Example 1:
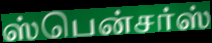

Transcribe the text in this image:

ஸ்பென்சர்ஸ்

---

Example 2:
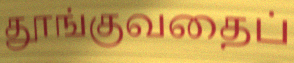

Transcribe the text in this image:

தூங்குவதைப்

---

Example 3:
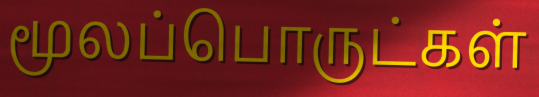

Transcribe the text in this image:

மூலப்பொருட்கள்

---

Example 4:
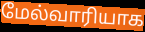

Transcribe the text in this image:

மேல்வாரியாக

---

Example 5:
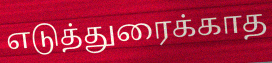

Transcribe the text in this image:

எடுத்துரைக்காத